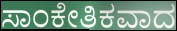
ಸಾಂಕೇತಿಕವಾದ